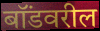
बॉंडवरील